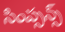
సింప్సన్స్